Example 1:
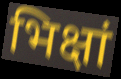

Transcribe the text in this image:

भिक्षां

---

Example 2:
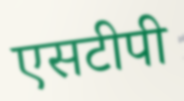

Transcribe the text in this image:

एसटीपी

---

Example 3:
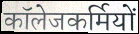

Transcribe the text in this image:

कॉलेजकर्मियों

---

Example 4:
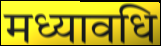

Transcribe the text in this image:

मध्यावधि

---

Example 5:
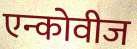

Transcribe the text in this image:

एन्कोवीज